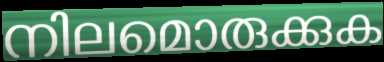
നിലമൊരുക്കുക